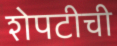
शेपटीची